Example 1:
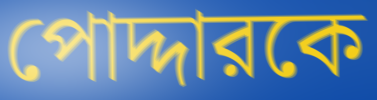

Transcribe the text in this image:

পোদ্দারকে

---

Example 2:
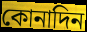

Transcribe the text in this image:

কোনাদিন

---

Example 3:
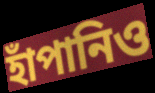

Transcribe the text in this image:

হাঁপানিও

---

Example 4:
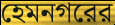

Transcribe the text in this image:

হেমনগরের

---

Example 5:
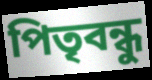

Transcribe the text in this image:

পিতৃবন্ধু